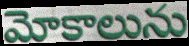
మోకాలును